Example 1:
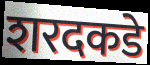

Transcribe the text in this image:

शरदकडे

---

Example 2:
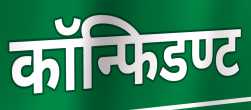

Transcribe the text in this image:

कॉन्फिडण्ट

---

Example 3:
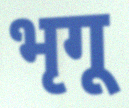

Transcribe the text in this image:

भृगू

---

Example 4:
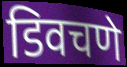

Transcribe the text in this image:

डिवचणे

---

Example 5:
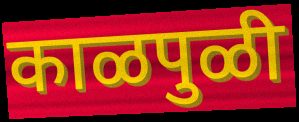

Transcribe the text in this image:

काळपुळी